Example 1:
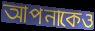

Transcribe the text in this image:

আপনাকেও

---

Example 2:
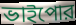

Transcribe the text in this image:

ভাইপোর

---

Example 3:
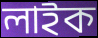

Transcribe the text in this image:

লাইক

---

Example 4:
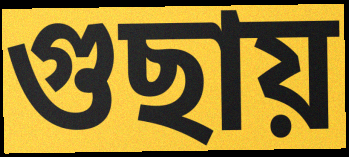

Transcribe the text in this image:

গুছায়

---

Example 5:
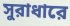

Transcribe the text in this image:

সুরাধারে